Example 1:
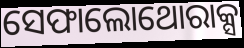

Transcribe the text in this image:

ସେଫାଲୋଥୋରାକ୍ସ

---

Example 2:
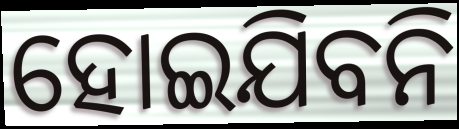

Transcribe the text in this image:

ହୋଇଯିବନି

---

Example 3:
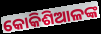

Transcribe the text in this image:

କୋକିଶିଆଳଙ୍କ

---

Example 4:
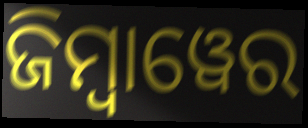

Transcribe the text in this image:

ଜିମ୍ୱାୱେର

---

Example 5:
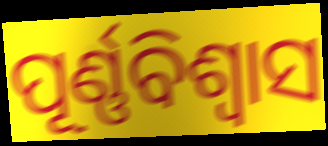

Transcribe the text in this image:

ପୂର୍ଣ୍ଣବିଶ୍ଵାସ